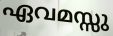
ഏവമസ്സു